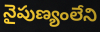
నైపుణ్యంలేని